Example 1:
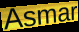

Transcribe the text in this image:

Asmar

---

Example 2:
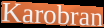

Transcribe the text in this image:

Karobran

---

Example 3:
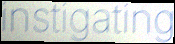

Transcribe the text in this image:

instigating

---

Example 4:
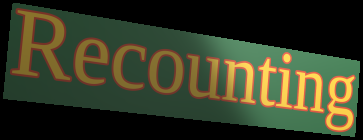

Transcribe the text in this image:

Recounting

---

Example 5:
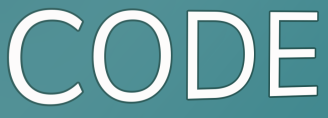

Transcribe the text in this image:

CODE